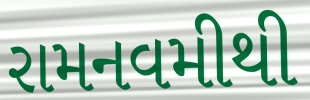
રામનવમીથી